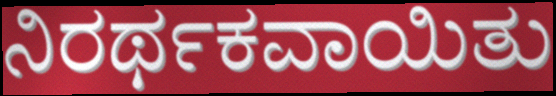
ನಿರರ್ಥಕವಾಯಿತು